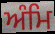
ਅੰਮਿ